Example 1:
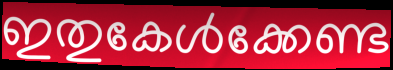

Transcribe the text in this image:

ഇതുകേൾക്കേണ്ട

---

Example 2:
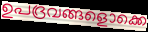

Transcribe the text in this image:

ഉപദ്രവങ്ങളൊക്കെ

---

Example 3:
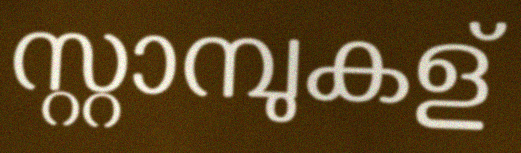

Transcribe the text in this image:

സ്റ്റാമ്പുകള്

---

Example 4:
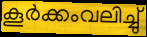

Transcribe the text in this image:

കൂർക്കംവലിച്ചു്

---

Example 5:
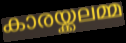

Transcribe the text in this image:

കാരയ്ക്കലമ്മ